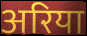
अरिया